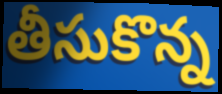
తీసుకొన్న